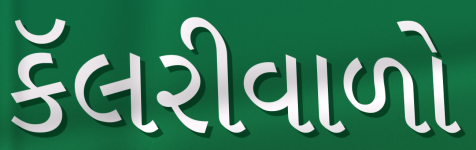
કૅલરીવાળો